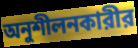
অনুশীলনকারীর